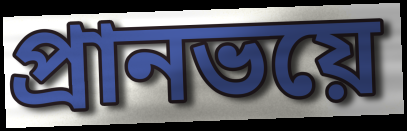
প্রানভয়ে